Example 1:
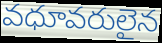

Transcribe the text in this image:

వధూవరులైన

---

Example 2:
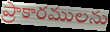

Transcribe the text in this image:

ప్రాకారములను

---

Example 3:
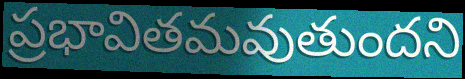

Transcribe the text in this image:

ప్రభావితమవుతుందని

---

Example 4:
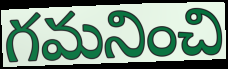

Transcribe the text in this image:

గమనించి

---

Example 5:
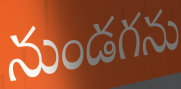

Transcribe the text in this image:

నుండగను